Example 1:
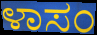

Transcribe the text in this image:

ಳಾಸಂ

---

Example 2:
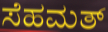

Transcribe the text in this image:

ಸೆಹಮತ್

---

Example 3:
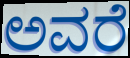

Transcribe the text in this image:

ಅವರೆ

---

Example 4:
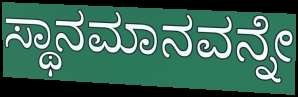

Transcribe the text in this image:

ಸ್ಥಾನಮಾನವನ್ನೇ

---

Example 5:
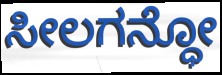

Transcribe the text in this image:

ಸೀಲಗನ್ಧೋ